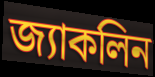
জ্যাকলিন